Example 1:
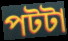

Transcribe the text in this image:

পটটা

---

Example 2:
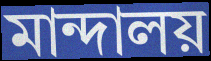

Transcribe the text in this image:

মান্দালয়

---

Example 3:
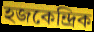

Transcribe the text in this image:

হজকেন্দ্রিক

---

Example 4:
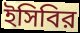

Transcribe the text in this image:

ইসিবির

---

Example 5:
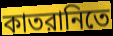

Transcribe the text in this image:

কাতরানিতে